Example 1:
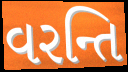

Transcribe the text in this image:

વરન્તિ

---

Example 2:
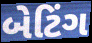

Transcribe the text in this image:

બેટિંગ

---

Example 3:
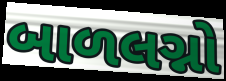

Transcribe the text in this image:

બાળલગ્નો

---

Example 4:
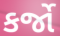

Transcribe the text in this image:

કર્જો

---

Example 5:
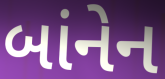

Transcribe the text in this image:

બાંનેન